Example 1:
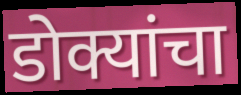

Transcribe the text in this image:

डोक्यांचा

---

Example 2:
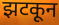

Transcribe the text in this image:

झटकून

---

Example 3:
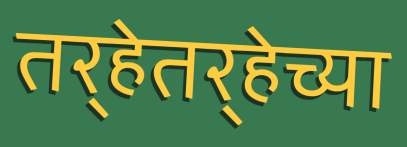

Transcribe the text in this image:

तर्‍हेतर्‍हेच्या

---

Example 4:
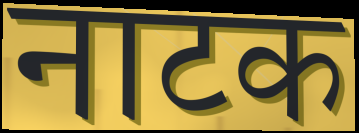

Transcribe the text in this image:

नाटक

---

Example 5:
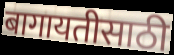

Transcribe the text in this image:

बागायतीसाठी